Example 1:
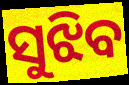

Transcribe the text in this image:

ସୁଝିବ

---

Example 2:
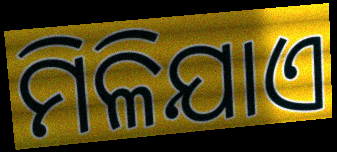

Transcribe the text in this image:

ମିଳିଯାଏ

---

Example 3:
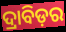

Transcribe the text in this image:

ଦ୍ରାବିଡ଼ର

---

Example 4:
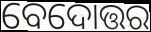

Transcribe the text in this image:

ବେଦୋତ୍ତର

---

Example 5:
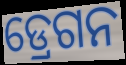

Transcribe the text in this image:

ଡ୍ରେଗନ